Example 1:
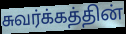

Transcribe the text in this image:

சுவர்க்கத்தின்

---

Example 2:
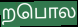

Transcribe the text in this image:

றபொல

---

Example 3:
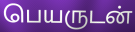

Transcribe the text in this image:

பெயருடன்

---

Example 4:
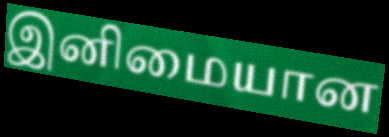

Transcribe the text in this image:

இனிமையான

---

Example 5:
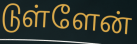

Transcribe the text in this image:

டுள்ளேன்